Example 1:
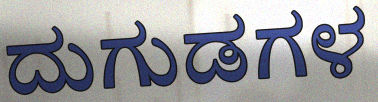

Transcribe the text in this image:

ದುಗುಡಗಳ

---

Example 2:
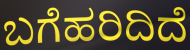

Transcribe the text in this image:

ಬಗೆಹರಿದಿದೆ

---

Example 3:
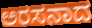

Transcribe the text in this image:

ಅರಸನಾದ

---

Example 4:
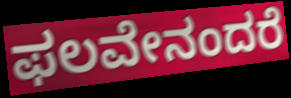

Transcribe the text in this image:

ಫಲವೇನಂದರೆ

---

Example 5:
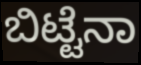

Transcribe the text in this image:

ಬಿಟ್ಟೆನಾ